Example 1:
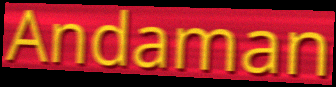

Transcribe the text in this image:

Andaman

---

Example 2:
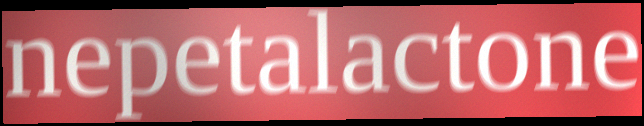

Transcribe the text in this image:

nepetalactone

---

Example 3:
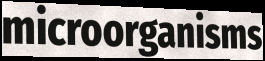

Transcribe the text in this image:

microorganisms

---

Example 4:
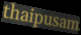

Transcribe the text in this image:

thaipusam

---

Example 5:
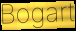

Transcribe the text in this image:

Bogart